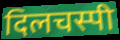
दिलचस्पी